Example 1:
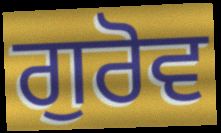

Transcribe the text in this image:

ਗੁਰੋਵ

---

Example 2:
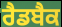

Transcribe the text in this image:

ਰੈਡਬੈਕ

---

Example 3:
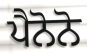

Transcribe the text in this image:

ਪੈਨੋਨੋ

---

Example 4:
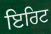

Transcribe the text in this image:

ਇਰਿਟ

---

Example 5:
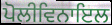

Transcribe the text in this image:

ਪੋਲੀਵਿਨਾਇਲ